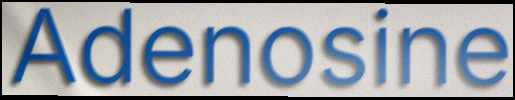
Adenosine